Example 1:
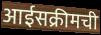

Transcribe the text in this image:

आईसक्रीमची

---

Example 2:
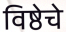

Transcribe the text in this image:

विष्ठेचे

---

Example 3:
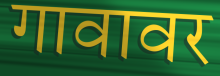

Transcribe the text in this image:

गावावर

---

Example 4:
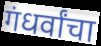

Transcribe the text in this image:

गंधर्वांचा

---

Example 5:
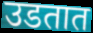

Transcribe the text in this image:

उडतात